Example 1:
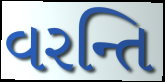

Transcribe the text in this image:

વરન્તિ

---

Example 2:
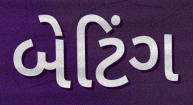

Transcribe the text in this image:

બેટિંગ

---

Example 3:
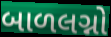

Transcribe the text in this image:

બાળલગ્નો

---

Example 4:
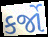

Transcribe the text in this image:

કર્જો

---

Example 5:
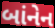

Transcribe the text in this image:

બાંનેન